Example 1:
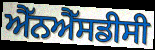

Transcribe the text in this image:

ਐੱਨਐੱਸਡੀਸੀ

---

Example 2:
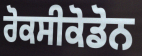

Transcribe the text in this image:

ਰੋਕਸੀਕੋਡੋਨ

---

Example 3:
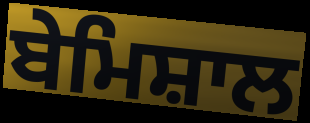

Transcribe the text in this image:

ਬੇਮਿਸ਼ਾਲ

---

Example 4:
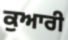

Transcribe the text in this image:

ਕੁਆਰੀ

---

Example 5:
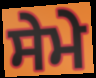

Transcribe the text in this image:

ਸੇਮੇ